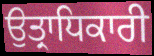
ਉਤ੍ਰਾਧਿਕਾਰੀ